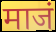
माजं